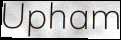
Upham